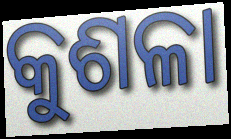
କୁଶଳା